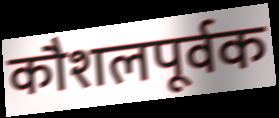
कौशलपूर्वक